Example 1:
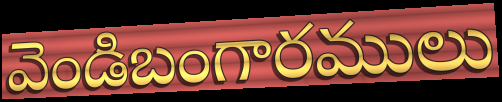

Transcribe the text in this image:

వెండిబంగారములు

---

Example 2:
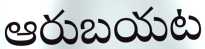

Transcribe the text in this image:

ఆరుబయట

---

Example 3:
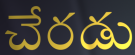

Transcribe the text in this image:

చేరడు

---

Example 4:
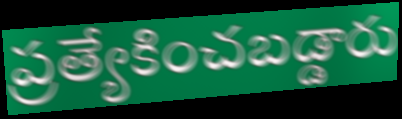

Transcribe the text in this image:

ప్రత్యేకించబడ్డారు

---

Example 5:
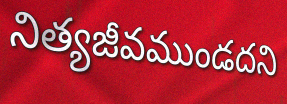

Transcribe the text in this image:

నిత్యజీవముండదని